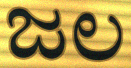
ಜಲ